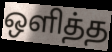
ஒளித்த